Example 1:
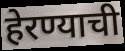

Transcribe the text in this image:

हेरण्याची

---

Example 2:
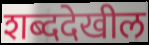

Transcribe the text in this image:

शब्ददेखील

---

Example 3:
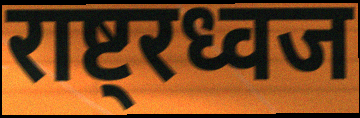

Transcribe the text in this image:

राष्ट्रध्वज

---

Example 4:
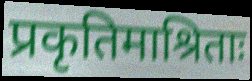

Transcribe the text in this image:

प्रकृतिमाश्रिताः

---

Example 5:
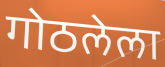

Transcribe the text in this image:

गोठलेला